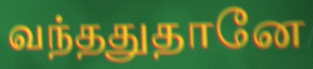
வந்ததுதானே